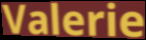
Valerie